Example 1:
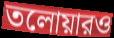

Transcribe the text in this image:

তলোয়ারও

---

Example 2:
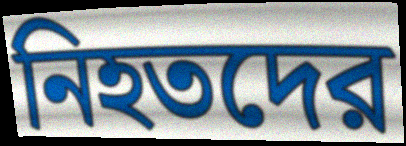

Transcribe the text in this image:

নিহতদের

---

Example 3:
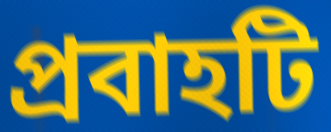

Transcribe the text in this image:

প্রবাহটি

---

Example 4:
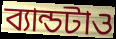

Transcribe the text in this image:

ব্যান্ডটাও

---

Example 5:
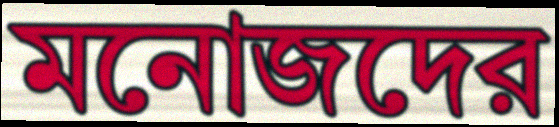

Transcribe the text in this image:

মনোজদের